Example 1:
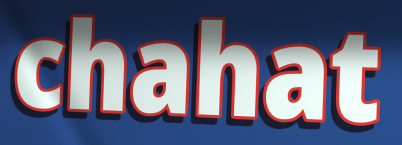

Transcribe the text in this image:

chahat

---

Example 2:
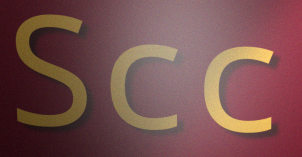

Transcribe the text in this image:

Scc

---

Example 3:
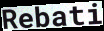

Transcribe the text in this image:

Rebati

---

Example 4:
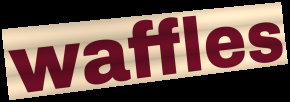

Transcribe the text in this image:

waffles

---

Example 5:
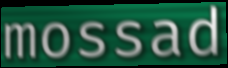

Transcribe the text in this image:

mossad